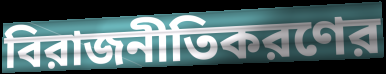
বিরাজনীতিকরণের